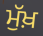
ਮੁੱਖ਼